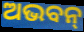
ଅଭବନ୍